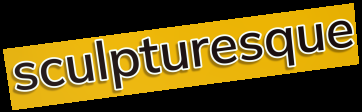
sculpturesque